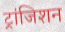
ट्रांजिशन